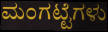
ಮಂಗಟ್ಟೆಗಳು